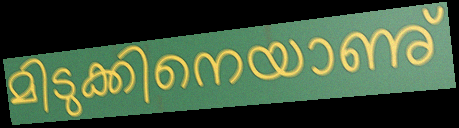
മിടുക്കിനെയാണു്